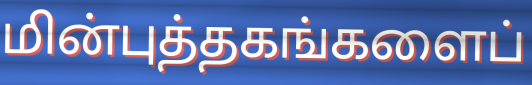
மின்புத்தகங்களைப்